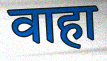
वाहा